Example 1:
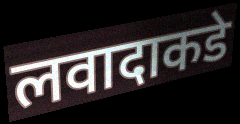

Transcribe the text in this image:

लवादाकडे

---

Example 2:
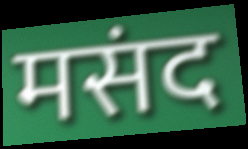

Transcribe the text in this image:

मसंद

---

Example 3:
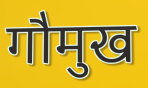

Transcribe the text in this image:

गौमुख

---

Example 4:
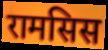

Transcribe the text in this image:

रामसिस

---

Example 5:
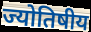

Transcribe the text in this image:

ज्योतिषीय